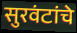
सुरवंटांचे